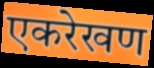
एकरेखण